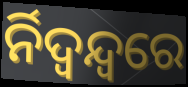
ର୍ନିଦ୍ୱନ୍ଦ୍ୱରେ